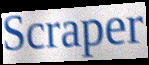
Scraper